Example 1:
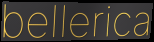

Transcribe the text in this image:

bellerica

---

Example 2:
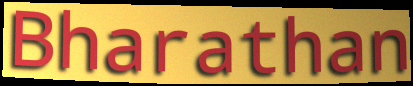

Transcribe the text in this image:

Bharathan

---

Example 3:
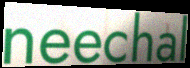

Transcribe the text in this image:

neechal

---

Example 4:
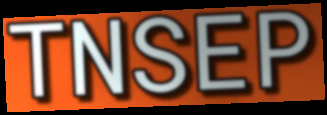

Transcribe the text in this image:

TNSEP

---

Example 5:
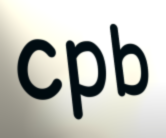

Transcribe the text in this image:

cpb